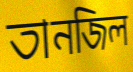
তানজিল